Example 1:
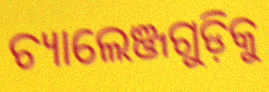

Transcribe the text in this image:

ଚ୍ୟାଲେଞ୍ଜଗୁଡ଼ିକୁ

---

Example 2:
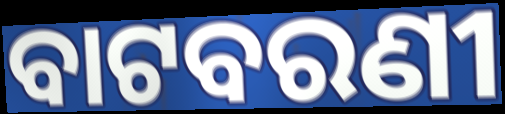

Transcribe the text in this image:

ବାଟବରଣୀ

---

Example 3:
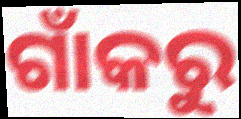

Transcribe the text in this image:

ଗାଁକରୁ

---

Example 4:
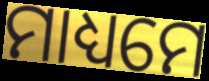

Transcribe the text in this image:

ମାଧ୍ୟମେ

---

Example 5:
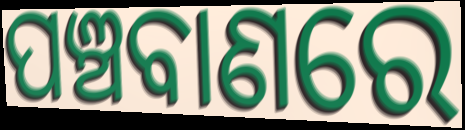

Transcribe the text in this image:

ପଞ୍ଚବାଣରେ